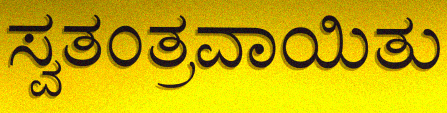
ಸ್ವತಂತ್ರವಾಯಿತು